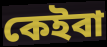
কেইবা